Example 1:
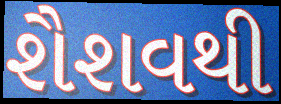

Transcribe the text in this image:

શૈશવથી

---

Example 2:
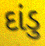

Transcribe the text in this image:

દાંડુ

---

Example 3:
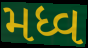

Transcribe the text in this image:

મધ્વ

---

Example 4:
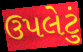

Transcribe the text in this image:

ઉપલેટું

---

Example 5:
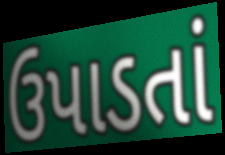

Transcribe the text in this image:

ઉપાડતાં